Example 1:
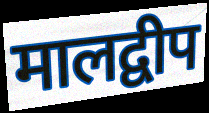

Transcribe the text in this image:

मालद्वीप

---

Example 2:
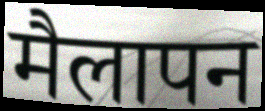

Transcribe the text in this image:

मैलापन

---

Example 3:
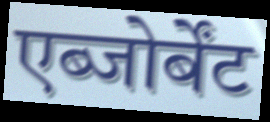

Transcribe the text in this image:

एब्जोर्बेंट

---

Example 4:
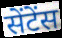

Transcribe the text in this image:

सेंटेंस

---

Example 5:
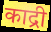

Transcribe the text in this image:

काद्री